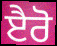
ੲੈਰੋ